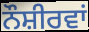
ਨੌਸ਼ੀਰਵਾਂ